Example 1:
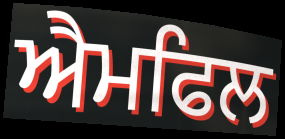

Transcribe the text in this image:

ਐਮਫਿਲ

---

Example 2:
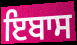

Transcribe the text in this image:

ਇਬਾਸ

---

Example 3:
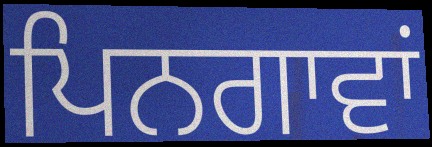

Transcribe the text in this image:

ਪਿਨਗਾਵਾਂ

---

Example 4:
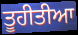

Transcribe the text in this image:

ਤੂਹੀਤੀਆ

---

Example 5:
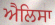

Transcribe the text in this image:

ਐਲਿਸਾ